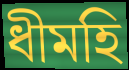
ধীমহি